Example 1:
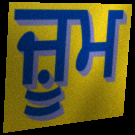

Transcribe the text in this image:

ਜ਼ੂਮ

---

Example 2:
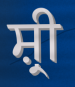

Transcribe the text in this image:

ਸ਼੍ਰੀ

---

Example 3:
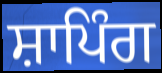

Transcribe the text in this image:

ਸ਼ਾਪਿੰਗ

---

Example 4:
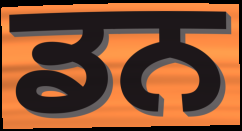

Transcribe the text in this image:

ਡਨ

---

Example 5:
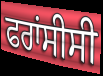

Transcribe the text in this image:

ਫਰਾਂਸੀਸੀ